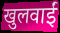
खुलवाईं